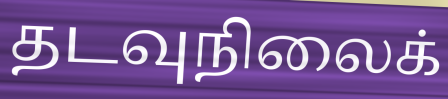
தடவுநிலைக்